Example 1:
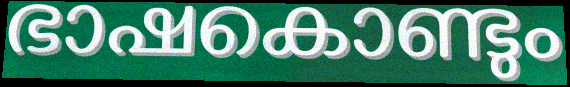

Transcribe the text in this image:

ഭാഷകൊണ്ടും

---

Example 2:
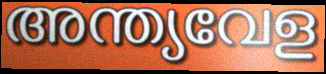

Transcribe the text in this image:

അന്ത്യവേള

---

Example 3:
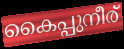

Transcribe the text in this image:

കൈപ്പുനീര്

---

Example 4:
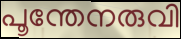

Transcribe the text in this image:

പൂന്തേനരുവി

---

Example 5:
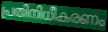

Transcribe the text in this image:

പ്രതിനിധീകരണം